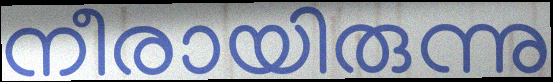
നീരായിരുന്നു